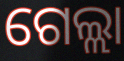
ଗେଲ୍ଲା